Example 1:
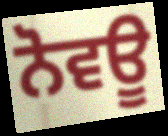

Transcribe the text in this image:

ਨੋਵਊ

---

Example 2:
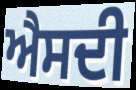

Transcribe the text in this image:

ਐਸਦੀ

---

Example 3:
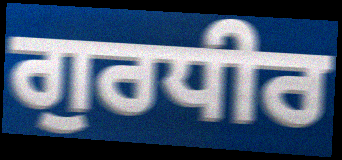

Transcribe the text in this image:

ਗੁਰਧੀਰ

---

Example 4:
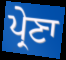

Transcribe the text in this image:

ਪ੍ਰੇਣਾ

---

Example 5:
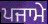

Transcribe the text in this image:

ਪਜਾਮੇ